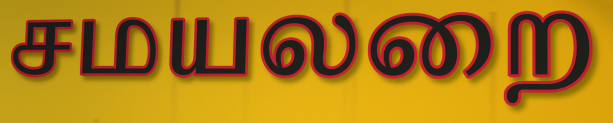
சமயலறை